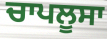
ਚਾਪਲੂਸਾ